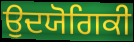
ਉਦਯੋਗਿਕੀ